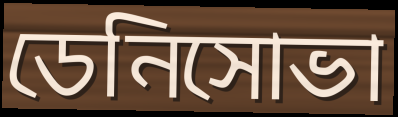
ডেনিসোভা